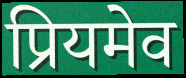
प्रियमेव